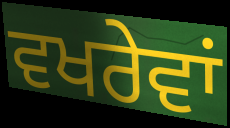
ਵਖਰੇਵਾਂ